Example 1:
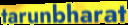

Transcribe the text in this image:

tarunbharat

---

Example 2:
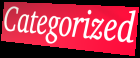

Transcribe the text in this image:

Categorized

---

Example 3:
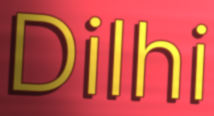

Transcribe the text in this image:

Dilhi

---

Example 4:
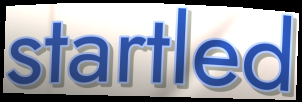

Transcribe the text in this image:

startled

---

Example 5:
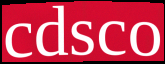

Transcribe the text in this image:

cdsco